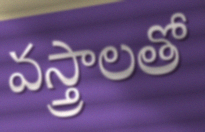
వస్త్రాలతో